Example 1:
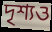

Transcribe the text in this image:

দৃশ্যও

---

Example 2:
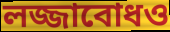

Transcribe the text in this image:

লজ্জাবোধও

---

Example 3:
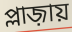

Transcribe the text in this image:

প্লাজ়ায়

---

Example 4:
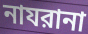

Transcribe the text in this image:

নাযরানা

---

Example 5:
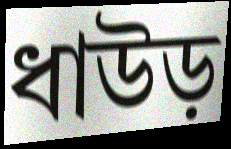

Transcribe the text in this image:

ধাউড়